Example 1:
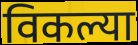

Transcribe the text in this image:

विकल्या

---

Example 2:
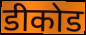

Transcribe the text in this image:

डीकोड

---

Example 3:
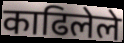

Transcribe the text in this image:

काढिलेले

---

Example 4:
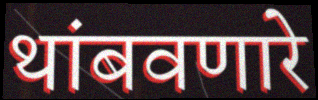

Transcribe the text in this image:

थांबवणारे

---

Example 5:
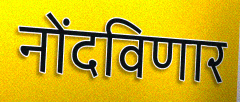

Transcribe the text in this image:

नोंदविणार